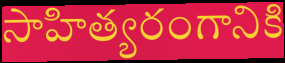
సాహిత్యరంగానికి